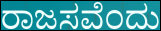
ರಾಜಸವೆಂದು